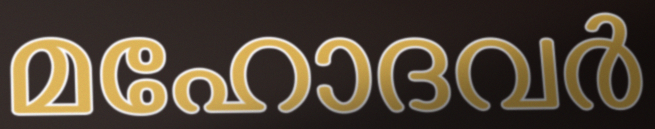
മഹോദവർ